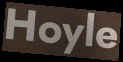
Hoyle